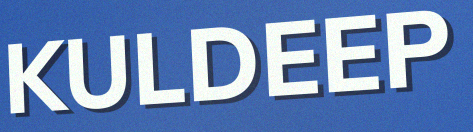
KULDEEP